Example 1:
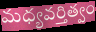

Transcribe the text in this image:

మధ్యవర్తిత్వం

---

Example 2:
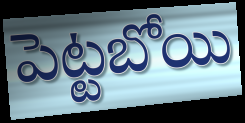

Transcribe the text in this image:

పెట్టబోయి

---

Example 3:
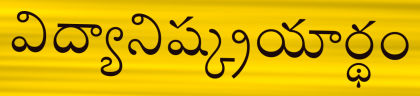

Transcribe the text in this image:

విద్యానిష్క్రయార్థం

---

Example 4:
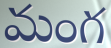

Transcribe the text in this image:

మంగ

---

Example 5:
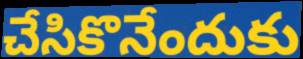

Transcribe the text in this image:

చేసికొనేందుకు